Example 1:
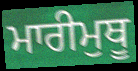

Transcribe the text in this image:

ਮਾਰੀਮੁਥੂ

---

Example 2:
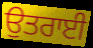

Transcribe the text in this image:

ਉਤਰਾਈ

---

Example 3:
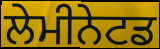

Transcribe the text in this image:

ਲੇਮੀਨੇਟਡ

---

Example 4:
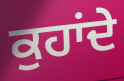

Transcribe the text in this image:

ਕੁਹਾਂਦੇ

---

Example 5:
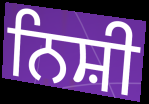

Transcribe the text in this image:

ਨਿਸ਼ੀ